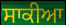
ਸਾਕੀਆ